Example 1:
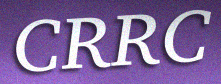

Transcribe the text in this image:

CRRC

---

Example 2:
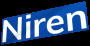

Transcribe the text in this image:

Niren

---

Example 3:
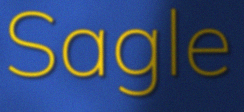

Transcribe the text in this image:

Sagle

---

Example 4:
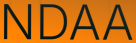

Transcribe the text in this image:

NDAA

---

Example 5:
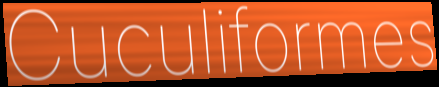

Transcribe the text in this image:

Cuculiformes